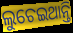
ଲୁଚେଇଥାନ୍ତି